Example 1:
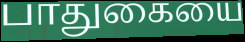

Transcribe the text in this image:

பாதுகையை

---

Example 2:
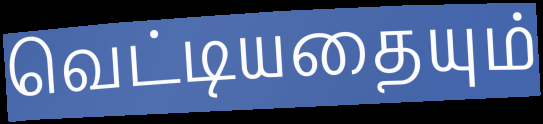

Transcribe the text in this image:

வெட்டியதையும்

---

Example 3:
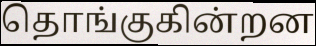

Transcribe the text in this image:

தொங்குகின்றன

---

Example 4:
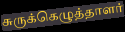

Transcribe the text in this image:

சுருக்கெழுத்தாளர்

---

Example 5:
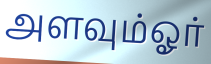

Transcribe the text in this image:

அளவும்ஓர்